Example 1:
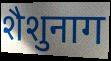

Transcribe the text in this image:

शैशुनाग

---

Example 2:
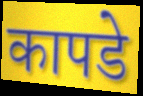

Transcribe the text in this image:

कापडे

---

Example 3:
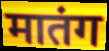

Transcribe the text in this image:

मातंग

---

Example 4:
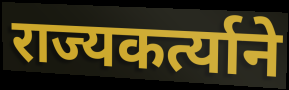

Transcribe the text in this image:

राज्यकर्त्याने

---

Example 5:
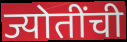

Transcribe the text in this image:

ज्योतींची